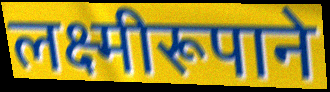
लक्ष्मीरूपाने